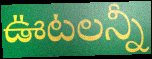
ఊటలన్నీ